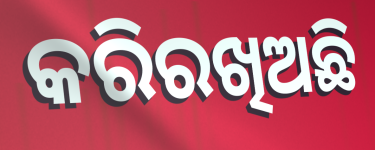
କରିରଖିଅଛି